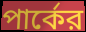
পার্কের